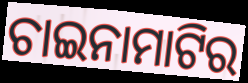
ଚାଇନାମାଟିର